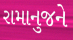
રામાનુજને